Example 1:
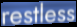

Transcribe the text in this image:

restless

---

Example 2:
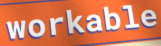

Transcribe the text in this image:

workable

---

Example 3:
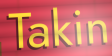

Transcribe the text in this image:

Takin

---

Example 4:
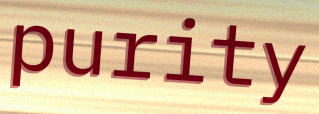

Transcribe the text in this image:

purity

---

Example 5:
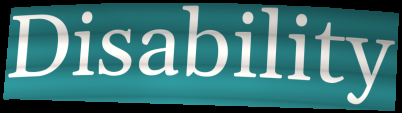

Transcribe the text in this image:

Disability